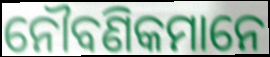
ନୌବଣିକମାନେ